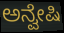
ಅನ್ವೇಷಿ